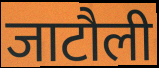
जाटौली